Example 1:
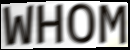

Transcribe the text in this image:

WHOM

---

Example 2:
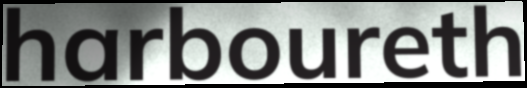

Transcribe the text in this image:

harboureth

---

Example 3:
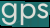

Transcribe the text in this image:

gps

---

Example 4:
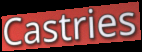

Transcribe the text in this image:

Castries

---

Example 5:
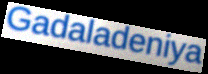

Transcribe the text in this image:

Gadaladeniya